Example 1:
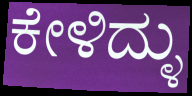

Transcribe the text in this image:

ಕೇಳಿದ್ಳು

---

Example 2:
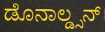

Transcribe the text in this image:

ಡೊನಾಲ್ಡ್ಸನ್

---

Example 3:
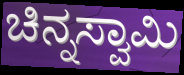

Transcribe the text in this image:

ಚಿನ್ನಸ್ವಾಮಿ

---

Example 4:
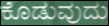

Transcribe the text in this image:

ಕೊಡುವುದು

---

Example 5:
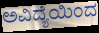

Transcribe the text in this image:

ಅವಿದ್ಯೆಯಿಂದ